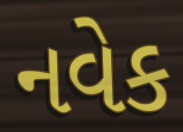
નવેક